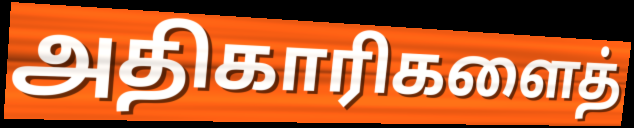
அதிகாரிகளைத்